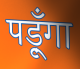
पड़ूँगा